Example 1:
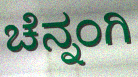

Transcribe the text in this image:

ಚೆನ್ನಂಗಿ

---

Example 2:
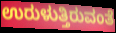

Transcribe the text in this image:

ಉರುಳುತ್ತಿರುವಂತೆ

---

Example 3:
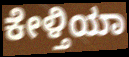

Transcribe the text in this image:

ಕೇಳ್ತಿಯಾ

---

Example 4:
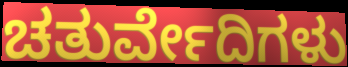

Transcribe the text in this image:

ಚತುರ್ವೇದಿಗಳು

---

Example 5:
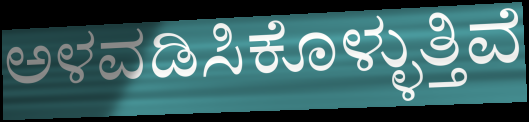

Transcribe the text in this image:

ಅಳವಡಿಸಿಕೊಳ್ಳುತ್ತಿವೆ